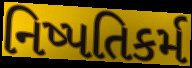
નિષ્પતિકર્મ